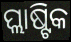
ପ୍ଲାଷ୍ଟିକ